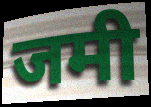
जमी